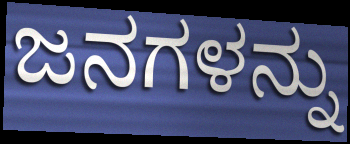
ಜನಗಳನ್ನು